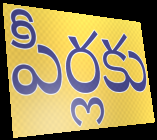
పీర్లకు